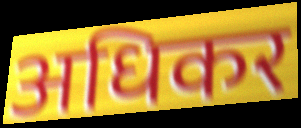
अधिकर